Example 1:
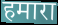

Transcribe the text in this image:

हमारा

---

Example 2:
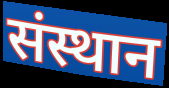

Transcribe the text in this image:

संस्थान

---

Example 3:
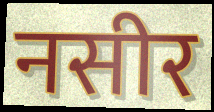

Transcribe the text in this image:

नसीर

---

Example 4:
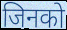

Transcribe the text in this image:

जिनको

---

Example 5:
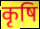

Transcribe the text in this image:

कृषि